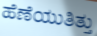
ಹೆಣೆಯುತಿತ್ತು